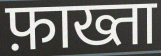
फ़ाख्ता